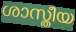
ശാസ്തീയ